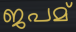
ജപമ്